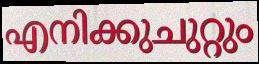
എനിക്കുചുറ്റും